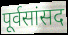
पूर्वसांसद